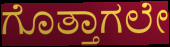
ಗೊತ್ತಾಗಲೇ